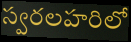
స్వరలహరిలో